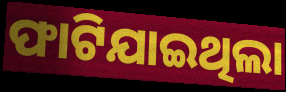
ଫାଟିଯାଇଥିଲା